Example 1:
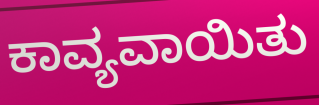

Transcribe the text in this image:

ಕಾವ್ಯವಾಯಿತು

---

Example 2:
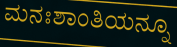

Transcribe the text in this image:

ಮನಃಶಾಂತಿಯನ್ನೂ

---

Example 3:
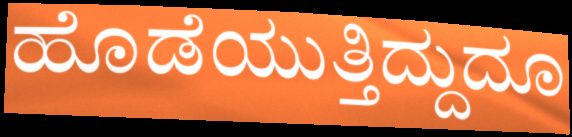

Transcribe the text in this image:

ಹೊಡೆಯುತ್ತಿದ್ದುದೂ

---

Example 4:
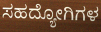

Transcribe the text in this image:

ಸಹದ್ಯೋಗಿಗಳ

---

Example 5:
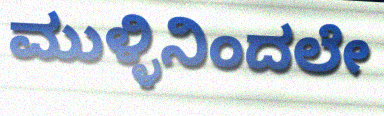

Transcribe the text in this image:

ಮುಳ್ಳಿನಿಂದಲೇ